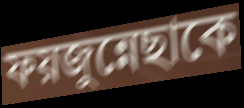
ফয়জুন্নেছাকে